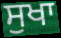
ਸੁਖਾ